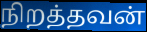
நிறத்தவன்